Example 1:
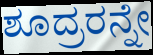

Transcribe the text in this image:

ಶೂದ್ರರನ್ನೇ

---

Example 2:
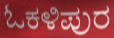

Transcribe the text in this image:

ಓಕಳಿಪುರ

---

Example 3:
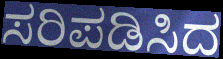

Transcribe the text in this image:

ಸರಿಪಡಿಸಿದ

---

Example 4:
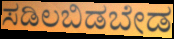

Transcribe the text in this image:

ಸಡಿಲಬಿಡಬೇಡ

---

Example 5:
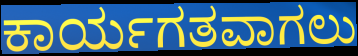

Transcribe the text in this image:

ಕಾರ್ಯಗತವಾಗಲು